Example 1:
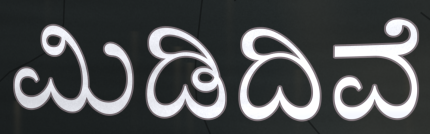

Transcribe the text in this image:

ಮಿಡಿದಿವೆ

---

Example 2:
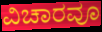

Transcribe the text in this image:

ವಿಚಾರವೂ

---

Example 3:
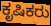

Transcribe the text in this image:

ಕೃಷಿಕರು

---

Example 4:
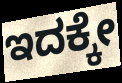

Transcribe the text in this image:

ಇದಕ್ಕೇ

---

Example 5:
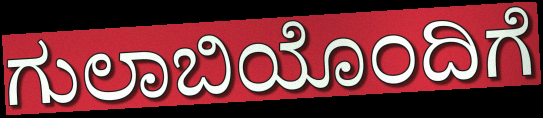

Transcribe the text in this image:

ಗುಲಾಬಿಯೊಂದಿಗೆ